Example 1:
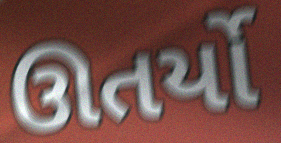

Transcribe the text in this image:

ઊતર્યો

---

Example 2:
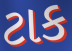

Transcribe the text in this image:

ટાક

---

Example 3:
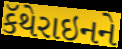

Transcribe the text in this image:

કૅથેરાઇનને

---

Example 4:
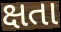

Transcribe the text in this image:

ક્ષતા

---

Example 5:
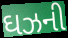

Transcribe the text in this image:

ઘઝની